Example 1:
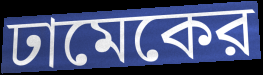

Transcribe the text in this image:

ঢামেকের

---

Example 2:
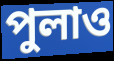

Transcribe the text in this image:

পুলাও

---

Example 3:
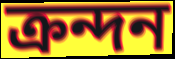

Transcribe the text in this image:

ক্রন্দন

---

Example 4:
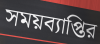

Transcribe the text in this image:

সময়ব্যাপ্তির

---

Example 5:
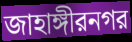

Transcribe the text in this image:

জাহাঙ্গীরনগর